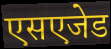
एसएजेड